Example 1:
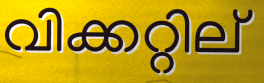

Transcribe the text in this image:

വിക്കറ്റില്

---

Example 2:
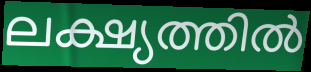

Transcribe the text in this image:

ലക്ഷ്യത്തിൽ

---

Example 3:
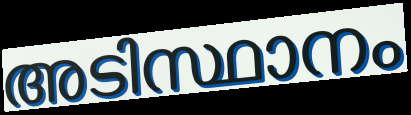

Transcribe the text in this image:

അടിസ്ഥാനം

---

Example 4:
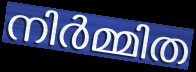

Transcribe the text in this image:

നിർമ്മിത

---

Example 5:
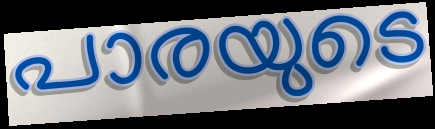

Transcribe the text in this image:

പാരയുടെ